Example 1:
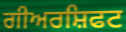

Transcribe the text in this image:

ਗੀਅਰਸ਼ਿਫਟ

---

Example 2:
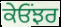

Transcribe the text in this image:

ਕੇਓਂਝਰ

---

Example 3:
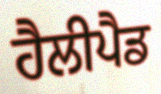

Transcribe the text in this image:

ਹੈਲੀਪੈਡ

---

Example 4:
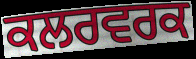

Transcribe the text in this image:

ਕਲਰਵਰਕ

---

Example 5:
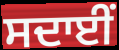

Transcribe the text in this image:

ਸਦਾਈਂ